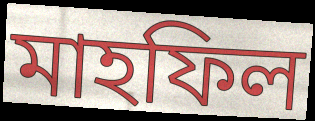
মাহফিল